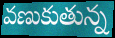
వణుకుతున్న